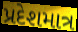
પ્રદેશમાત્ર